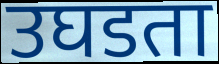
उघडता